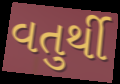
વતુર્થી